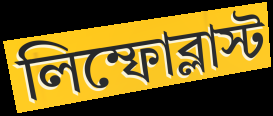
লিম্ফোব্লাস্ট